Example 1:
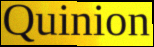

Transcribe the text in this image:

Quinion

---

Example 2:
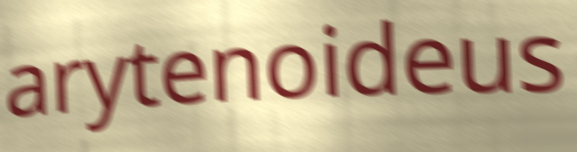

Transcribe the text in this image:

arytenoideus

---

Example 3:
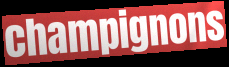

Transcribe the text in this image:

champignons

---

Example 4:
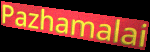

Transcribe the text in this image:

Pazhamalai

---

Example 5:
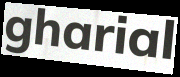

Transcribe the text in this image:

gharial